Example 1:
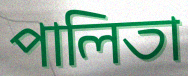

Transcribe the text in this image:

পালিতা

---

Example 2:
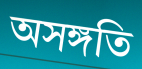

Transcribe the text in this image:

অসঙ্গতি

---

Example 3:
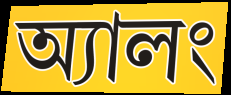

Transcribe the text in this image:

অ্যালং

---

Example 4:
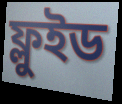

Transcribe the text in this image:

ফ্লুইড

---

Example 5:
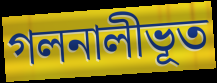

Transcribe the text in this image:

গলনালীভূত